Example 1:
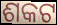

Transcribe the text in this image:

ଶକଟ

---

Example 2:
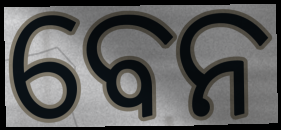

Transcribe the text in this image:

ବେନ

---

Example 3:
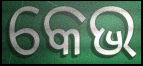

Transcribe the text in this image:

କେଭ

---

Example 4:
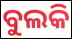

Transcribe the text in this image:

ବୁଲକି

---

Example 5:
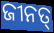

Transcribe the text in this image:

ଜୀନତ୍